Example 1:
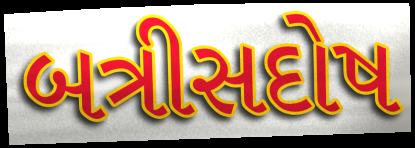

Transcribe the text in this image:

બત્રીસદોષ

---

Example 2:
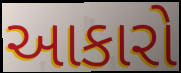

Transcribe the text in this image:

આકારો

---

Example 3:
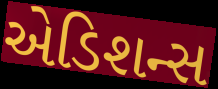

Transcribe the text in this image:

એડિશન્સ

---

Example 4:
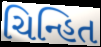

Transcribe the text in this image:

ચિન્હિત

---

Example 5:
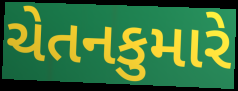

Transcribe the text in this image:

ચેતનકુમારે